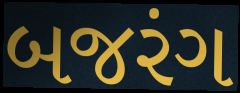
બજરંગ